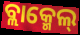
ବ୍ଲାକ୍ମେଲ୍